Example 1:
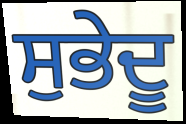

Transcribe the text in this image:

ਸੁਭੇਦੂ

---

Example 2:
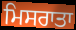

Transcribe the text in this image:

ਮਿਸਰਾਤਾ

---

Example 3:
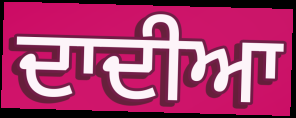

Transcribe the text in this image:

ਦਾਦੀਆ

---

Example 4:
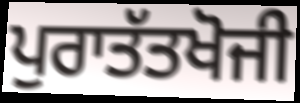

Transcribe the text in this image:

ਪੁਰਾਤੱਤਖੋਜੀ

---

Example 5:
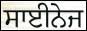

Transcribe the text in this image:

ਸਾਈਨੇਜ